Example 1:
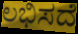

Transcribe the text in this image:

ಲಭಿಸದೆ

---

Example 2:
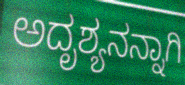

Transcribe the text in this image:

ಅದೃಶ್ಯನನ್ನಾಗಿ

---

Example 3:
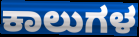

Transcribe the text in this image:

ಕಾಲುಗಳ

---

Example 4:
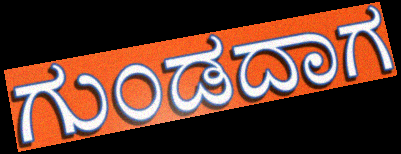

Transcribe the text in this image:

ಗುಂಡದಾಗ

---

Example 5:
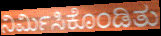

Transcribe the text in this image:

ನಿರ್ಮಿಸಿಕೊಂಡಿತು